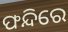
ଫନ୍ଦିରେ